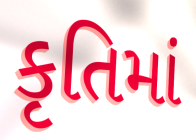
કૃતિમાં